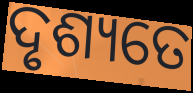
ଦୃଶ୍ୟତେ